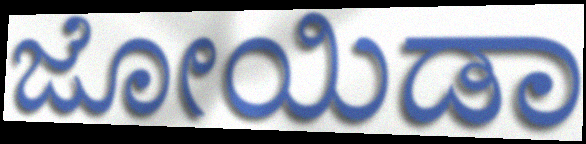
ಜೋಯಿಡಾ